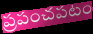
ప్రపంచపటం